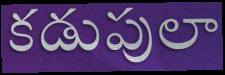
కడుపులా